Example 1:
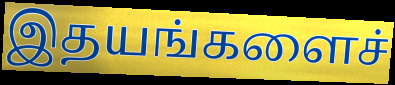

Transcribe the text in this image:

இதயங்களைச்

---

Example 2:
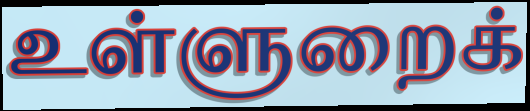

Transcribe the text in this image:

உள்ளுறைக்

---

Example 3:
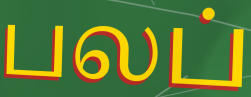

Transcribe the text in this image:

பலப்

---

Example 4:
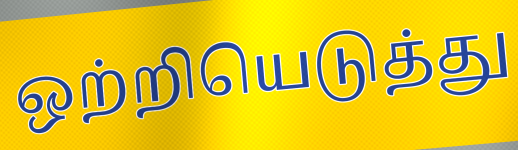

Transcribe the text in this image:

ஒற்றியெடுத்து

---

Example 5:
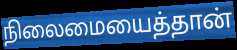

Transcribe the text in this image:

நிலைமையைத்தான்